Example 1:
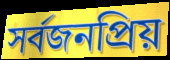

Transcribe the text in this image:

সর্বজনপ্রিয়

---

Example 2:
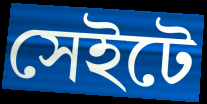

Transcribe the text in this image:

সেইটে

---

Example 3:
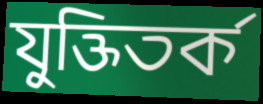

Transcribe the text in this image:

যুক্তিতর্ক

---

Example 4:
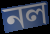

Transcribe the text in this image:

নল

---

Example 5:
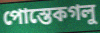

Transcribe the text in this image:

পোস্তেকগলু